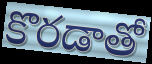
కొరడాతో